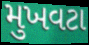
મુખવટા